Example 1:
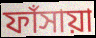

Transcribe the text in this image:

ফাঁসায়া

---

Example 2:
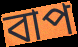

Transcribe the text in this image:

বাপ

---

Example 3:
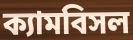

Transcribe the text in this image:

ক্যামবিসল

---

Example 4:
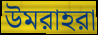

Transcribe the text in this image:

উমরাহরা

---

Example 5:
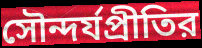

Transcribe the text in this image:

সৌন্দর্যপ্রীতির